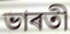
ভাৰতী